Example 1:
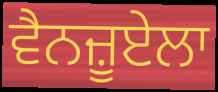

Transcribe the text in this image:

ਵੈਨਜ਼ੂਏਲਾ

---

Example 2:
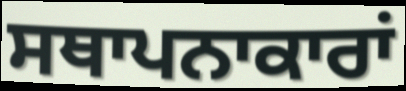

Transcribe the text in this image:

ਸਥਾਪਨਾਕਾਰਾਂ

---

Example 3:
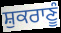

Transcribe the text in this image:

ਸ਼ੁਕਰਾਣੂੰ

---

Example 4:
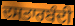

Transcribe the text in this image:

ਦਸਤਾਰਬੰਦੀ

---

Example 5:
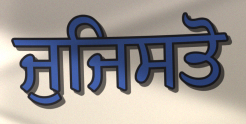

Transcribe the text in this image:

ਜੁਜਿਸਤੋ